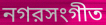
নগরসংগীত